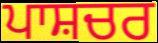
ਪਾਸ਼ਚਰ